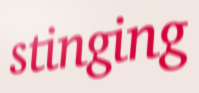
stinging